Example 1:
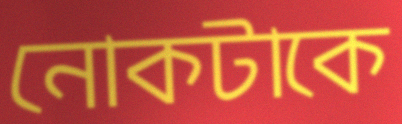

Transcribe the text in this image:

নোকটাকে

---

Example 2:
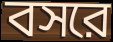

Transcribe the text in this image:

বসরে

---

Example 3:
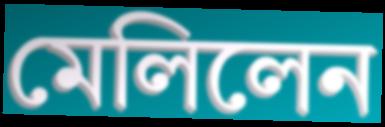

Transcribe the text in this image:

মেলিলেন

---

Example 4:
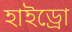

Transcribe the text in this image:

হাইড্রো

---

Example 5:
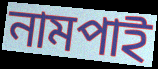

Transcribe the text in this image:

নামপাই